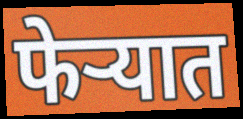
फेऱ्यात